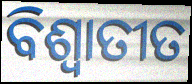
ବିଶ୍ଵାତୀତ